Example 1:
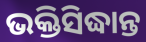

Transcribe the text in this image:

ଭକ୍ତିସିଦ୍ଧାନ୍ତ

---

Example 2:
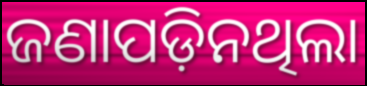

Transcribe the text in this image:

ଜଣାପଡ଼ିନଥିଲା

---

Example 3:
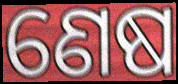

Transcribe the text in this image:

ଣେଷ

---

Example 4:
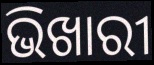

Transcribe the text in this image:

ଭିଖାରୀ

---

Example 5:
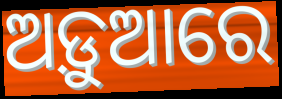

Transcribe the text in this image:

ଅଡ଼ୁଆରେ